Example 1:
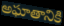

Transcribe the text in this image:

అఘాతానికి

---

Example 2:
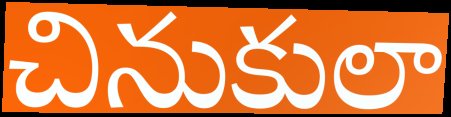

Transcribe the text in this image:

చినుకులా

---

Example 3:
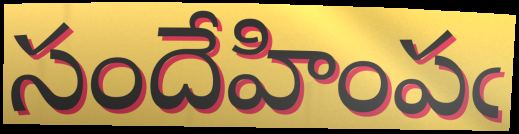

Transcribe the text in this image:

సందేహింపఁ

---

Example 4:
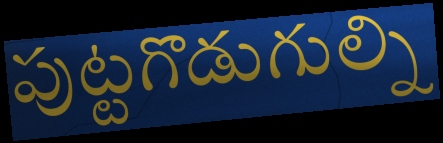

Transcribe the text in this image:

పుట్టగొడుగుల్ని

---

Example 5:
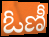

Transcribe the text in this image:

ఓణీ